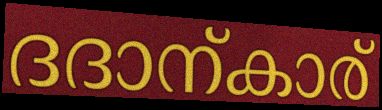
ദദാന്കാര്